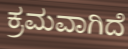
ಕ್ರಮವಾಗಿದೆ